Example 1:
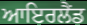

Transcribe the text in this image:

ਆਇਰਲੈਂਡ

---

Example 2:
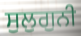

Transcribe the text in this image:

ਸੁਲੁਗੁਨੀ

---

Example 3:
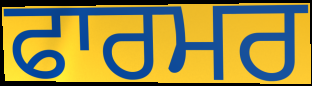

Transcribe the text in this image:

ਫਾਰਮਰ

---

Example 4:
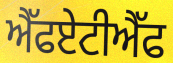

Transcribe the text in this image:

ਐੱਫਏਟੀਐੱਫ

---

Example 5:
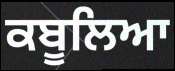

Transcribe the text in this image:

ਕਬੂਲਿਆ